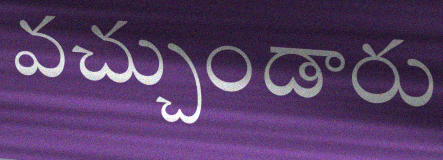
వచ్చుండారు